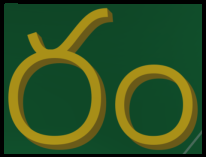
రం